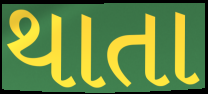
થાતા